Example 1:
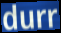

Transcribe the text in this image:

durr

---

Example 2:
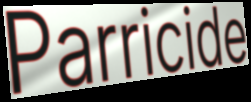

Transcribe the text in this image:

Parricide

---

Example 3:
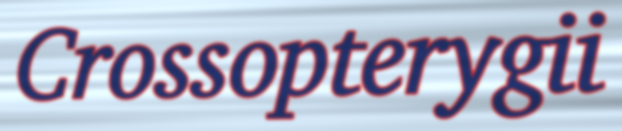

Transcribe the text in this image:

Crossopterygii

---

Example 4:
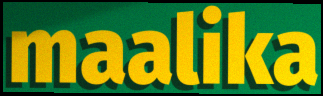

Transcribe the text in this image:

maalika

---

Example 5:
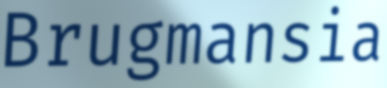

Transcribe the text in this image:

Brugmansia